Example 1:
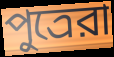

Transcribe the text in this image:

পুত্রেরা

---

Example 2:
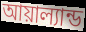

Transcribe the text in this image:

আয়াল্যান্ড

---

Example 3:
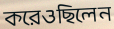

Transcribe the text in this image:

করেওছিলেন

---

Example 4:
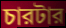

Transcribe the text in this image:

চারটার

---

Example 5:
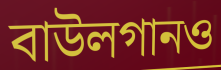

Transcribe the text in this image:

বাউলগানও